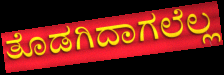
ತೊಡಗಿದಾಗಲೆಲ್ಲ